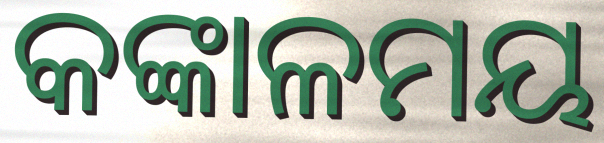
କଙ୍କାଳମୟ